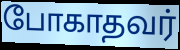
போகாதவர்